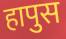
हापुस